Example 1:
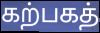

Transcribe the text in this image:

கற்பகத்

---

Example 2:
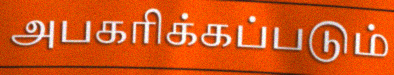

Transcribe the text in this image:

அபகரிக்கப்படும்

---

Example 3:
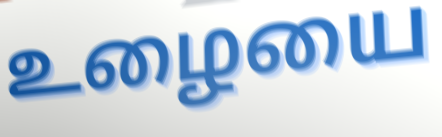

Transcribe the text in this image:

உழையை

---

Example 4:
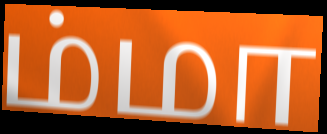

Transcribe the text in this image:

ம்மா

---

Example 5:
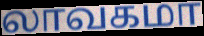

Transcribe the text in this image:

லாவகமா